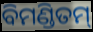
ବିମଣ୍ଡିତମ୍